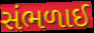
સંભળાઈ